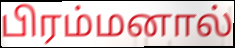
பிரம்மனால்